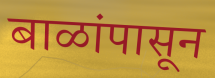
बाळांपासून